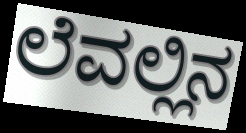
ಲೆವಲ್ಲಿನ